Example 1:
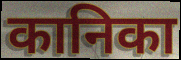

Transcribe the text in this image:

कानिका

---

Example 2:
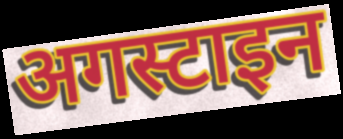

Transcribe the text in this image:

अगस्टाइन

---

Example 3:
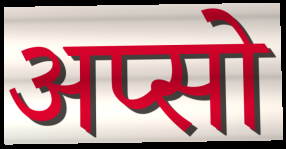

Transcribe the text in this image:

अप्सो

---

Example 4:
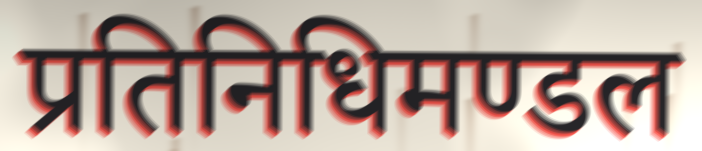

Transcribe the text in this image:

प्रतिनिधिमण्डल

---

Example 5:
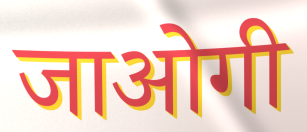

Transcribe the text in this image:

जाओगी